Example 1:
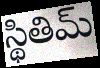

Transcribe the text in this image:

స్థితిమ్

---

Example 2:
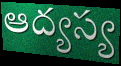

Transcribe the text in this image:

ఆద్యస్య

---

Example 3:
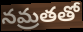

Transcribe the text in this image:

నమ్రతతో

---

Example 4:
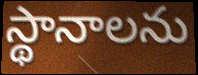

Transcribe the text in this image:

స్థానాలను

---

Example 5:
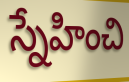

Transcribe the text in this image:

స్నేహించి